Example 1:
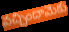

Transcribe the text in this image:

వచ్చిందామెకు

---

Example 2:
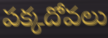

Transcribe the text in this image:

పక్కదోవలు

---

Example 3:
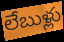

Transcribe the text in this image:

లేబుళ్లు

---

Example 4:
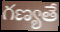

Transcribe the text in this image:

గణ్యతే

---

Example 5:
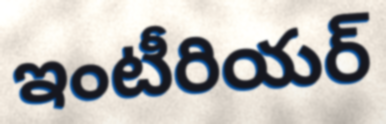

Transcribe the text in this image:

ఇంటీరియర్